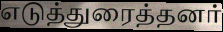
எடுத்துரைத்தனர்